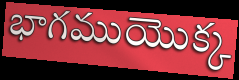
భాగముయొక్క